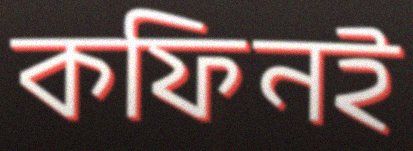
কফিনই